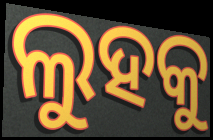
ଲୁହକୁ